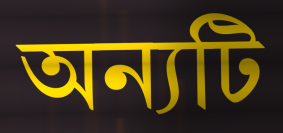
অন্যটি